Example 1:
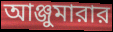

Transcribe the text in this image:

আঞ্জুমারার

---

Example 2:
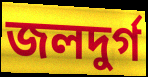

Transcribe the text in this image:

জলদুর্গ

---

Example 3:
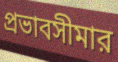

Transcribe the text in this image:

প্রভাবসীমার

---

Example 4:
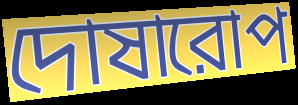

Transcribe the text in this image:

দোষারোপ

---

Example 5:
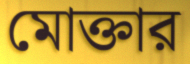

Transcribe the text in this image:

মোক্তার